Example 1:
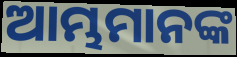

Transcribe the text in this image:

ଆମ୍ଭମାନଙ୍କ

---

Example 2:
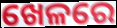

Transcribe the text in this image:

ଖେଳରେ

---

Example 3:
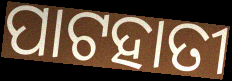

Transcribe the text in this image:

ପାଟହାତୀ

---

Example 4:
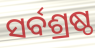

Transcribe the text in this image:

ସର୍ବଶ୍ରଷ୍ଠ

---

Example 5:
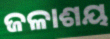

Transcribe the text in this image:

ଜଳାଶୟ